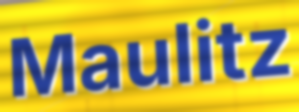
Maulitz